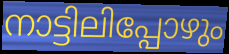
നാട്ടിലിപ്പോഴും